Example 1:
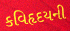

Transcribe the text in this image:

કવિહૃદયની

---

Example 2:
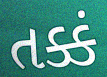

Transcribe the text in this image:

તક્કં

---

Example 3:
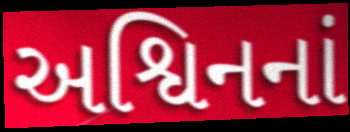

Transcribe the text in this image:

અશ્વિનનાં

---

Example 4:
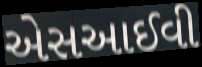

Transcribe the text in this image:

એસઆઈવી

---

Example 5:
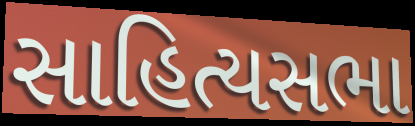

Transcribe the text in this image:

સાહિત્યસભા